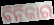
ବିନିକାର